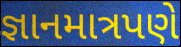
જ્ઞાનમાત્રપણે